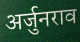
अर्जुनराव